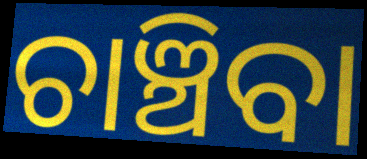
ଚାଞ୍ଚିବା